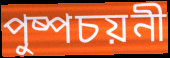
পুষ্পচয়নী